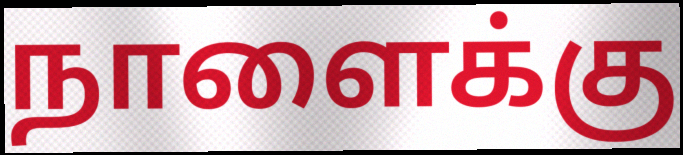
நாளைக்கு